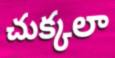
చుక్కలా